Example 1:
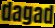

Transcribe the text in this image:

dagad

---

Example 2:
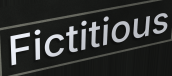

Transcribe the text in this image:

Fictitious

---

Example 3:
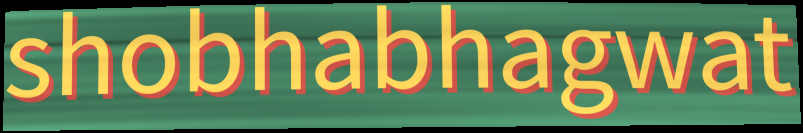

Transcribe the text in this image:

shobhabhagwat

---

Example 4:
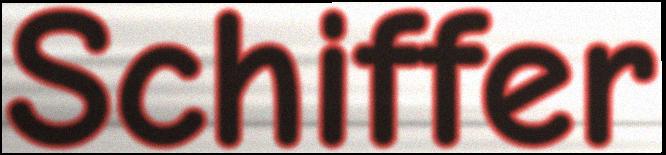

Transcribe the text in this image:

Schiffer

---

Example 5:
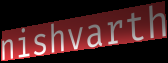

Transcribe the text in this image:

nishvarth